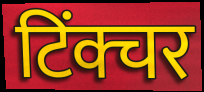
टिंक्चर